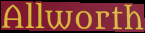
Allworth